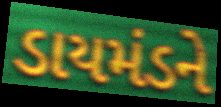
ડાયમંડને